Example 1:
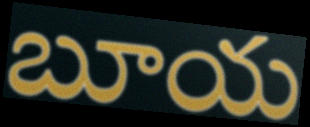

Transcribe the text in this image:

బూయ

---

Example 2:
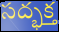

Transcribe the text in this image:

సద్భక్త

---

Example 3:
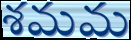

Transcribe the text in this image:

శమమ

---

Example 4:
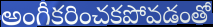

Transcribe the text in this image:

అంగీకరించకపోవడంతో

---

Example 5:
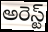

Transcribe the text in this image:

అరెస్ట్